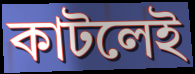
কাটলেই